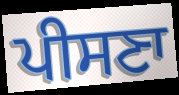
ਪੀਸਣਾ